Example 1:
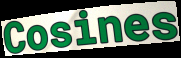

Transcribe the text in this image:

Cosines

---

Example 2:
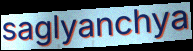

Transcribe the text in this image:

saglyanchya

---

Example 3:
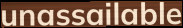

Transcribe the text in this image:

unassailable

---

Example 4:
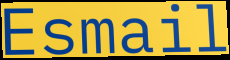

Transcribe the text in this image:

Esmail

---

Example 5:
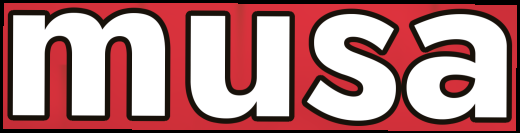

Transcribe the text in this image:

musa